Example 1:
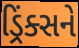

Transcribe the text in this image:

ડ્રિંક્સને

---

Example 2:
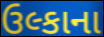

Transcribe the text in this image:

ઉલ્કાના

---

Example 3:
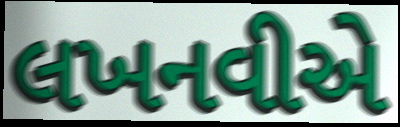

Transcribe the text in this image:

લખનવીએ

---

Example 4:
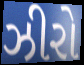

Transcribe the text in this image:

ઝીરો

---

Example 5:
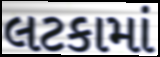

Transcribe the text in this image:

લટકામાં